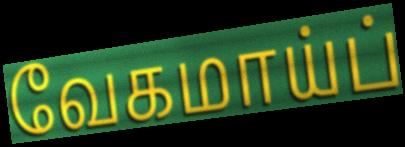
வேகமாய்ப்